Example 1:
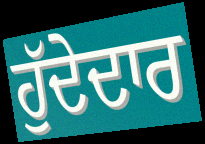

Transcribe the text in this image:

ਹੁੱਦੇਦਾਰ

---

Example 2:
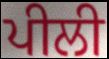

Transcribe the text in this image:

ਪੀਲੀ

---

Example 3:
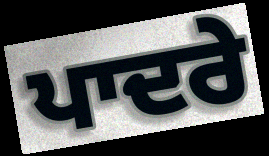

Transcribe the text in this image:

ਪਾਦਰੇ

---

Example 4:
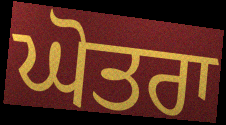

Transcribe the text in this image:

ਘੋਤਰਾ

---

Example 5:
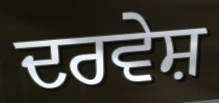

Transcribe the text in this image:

ਦਰਵੇਸ਼